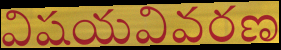
విషయవివరణ